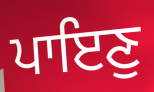
ਪਾਇਣੁ